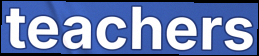
teachers